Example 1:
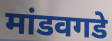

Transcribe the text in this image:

मांडवगडे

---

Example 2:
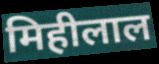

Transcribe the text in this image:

मिहीलाल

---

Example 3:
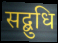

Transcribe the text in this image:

सद्बुधि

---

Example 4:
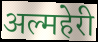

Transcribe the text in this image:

अल्महेरी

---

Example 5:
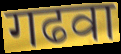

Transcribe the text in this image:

गढवा